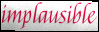
implausible